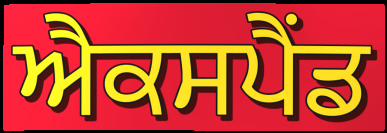
ਐਕਸਪੈਂਡ